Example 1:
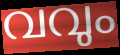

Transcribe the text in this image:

വവും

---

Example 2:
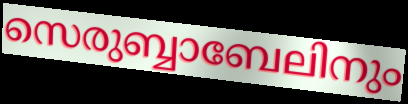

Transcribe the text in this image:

സെരുബ്ബാബേലിനും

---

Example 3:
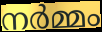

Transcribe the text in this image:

നർമ്മം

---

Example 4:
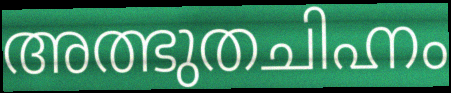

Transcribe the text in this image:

അത്ഭുതചിഹ്നം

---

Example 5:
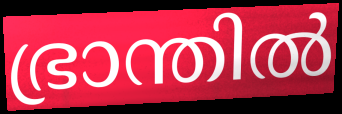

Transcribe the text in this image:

ഭ്രാന്തിൽ